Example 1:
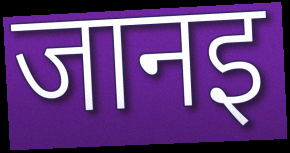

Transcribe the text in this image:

जानइ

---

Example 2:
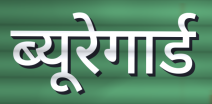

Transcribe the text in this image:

ब्यूरेगार्ड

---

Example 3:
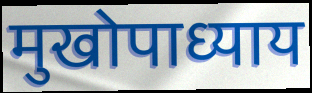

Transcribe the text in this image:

मुखोपाध्‍याय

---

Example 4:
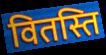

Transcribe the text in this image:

वितस्ति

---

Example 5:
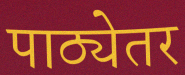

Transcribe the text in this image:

पाठ्येतर